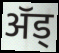
ॲड्